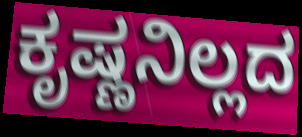
ಕೃಷ್ಣನಿಲ್ಲದ